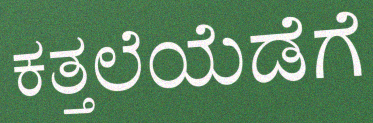
ಕತ್ತಲೆಯೆಡೆಗೆ